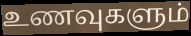
உணவுகளும்